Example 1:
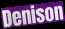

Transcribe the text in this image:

Denison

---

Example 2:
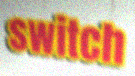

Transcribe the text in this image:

switch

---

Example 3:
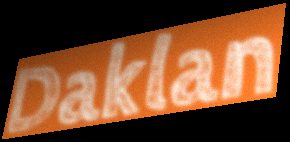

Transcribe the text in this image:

Daklan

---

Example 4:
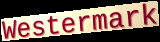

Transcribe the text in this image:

Westermark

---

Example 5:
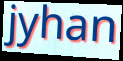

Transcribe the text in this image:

jyhan